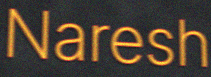
Naresh